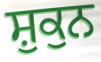
ਸ਼ੁਕੁਨ